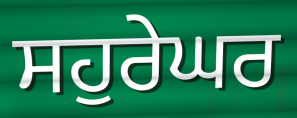
ਸਹੁਰੇਘਰ